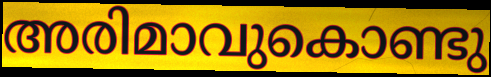
അരിമാവുകൊണ്ടു